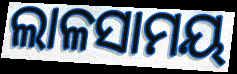
ଲାଳସାମୟ